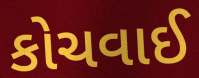
કોચવાઈ